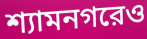
শ্যামনগরেও